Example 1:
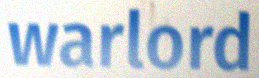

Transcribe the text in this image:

warlord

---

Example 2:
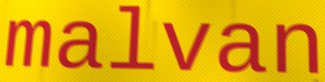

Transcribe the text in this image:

malvan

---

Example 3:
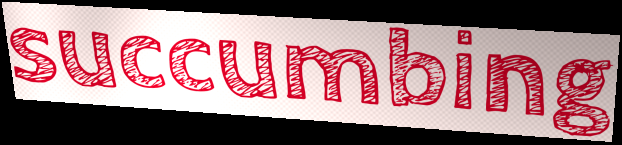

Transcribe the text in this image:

succumbing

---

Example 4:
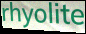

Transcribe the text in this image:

rhyolite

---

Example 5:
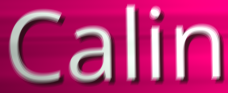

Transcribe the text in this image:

Calin